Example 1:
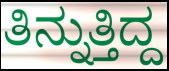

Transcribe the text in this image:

ತಿನ್ನುತ್ತಿದ್ದ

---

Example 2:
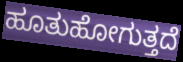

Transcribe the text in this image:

ಹೂತುಹೋಗುತ್ತದೆ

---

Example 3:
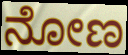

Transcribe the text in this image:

ನೋಣ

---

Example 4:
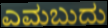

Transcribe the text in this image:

ಎಮಬುದು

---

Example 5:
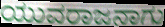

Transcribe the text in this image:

ಯುವರಾಜನಾಗು